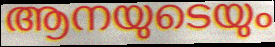
ആനയുടെയും